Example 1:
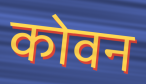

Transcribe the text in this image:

कोवन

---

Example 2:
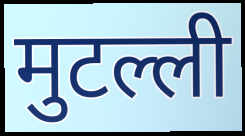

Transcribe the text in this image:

मुटल्ली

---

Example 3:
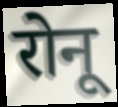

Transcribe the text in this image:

रोनू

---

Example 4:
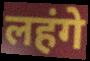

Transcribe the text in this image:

लहंगे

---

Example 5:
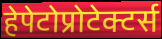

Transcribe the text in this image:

हेपेटोप्रोटेक्टर्स